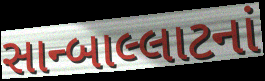
સાન્બાલ્લાટનાં